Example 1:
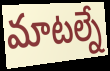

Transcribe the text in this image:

మాటల్నే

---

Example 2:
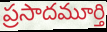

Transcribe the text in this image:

ప్రసాదమూర్తి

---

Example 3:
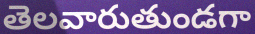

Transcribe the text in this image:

తెలవారుతుండగా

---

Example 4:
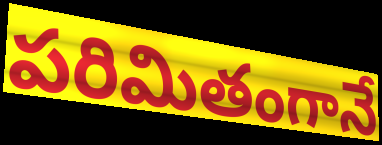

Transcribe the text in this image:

పరిమితంగానే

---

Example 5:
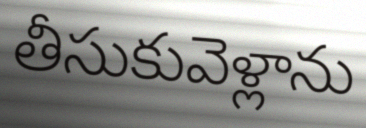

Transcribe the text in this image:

తీసుకువెళ్లాను